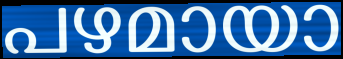
പഴമായാ